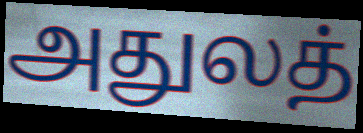
அதுலத்